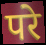
परे